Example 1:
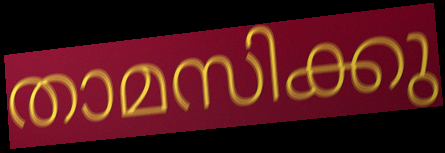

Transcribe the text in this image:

താമസിക്കു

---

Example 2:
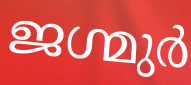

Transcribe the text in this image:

ജഗ്മുർ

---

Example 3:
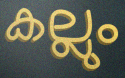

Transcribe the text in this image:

കല്ലും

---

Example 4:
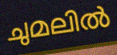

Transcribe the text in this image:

ചുമലിൽ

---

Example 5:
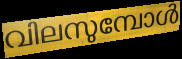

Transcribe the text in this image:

വിലസുമ്പോൾ